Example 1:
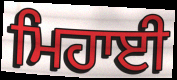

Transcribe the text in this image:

ਮਿਹਾਈ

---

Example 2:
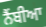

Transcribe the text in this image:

ਨੈਂਬੀਆ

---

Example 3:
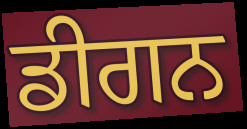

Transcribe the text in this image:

ਡੀਗਨ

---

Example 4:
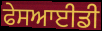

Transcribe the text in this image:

ਫੇਸਆਈਡੀ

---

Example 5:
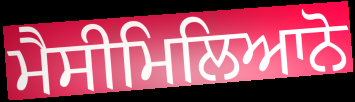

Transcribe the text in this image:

ਮੈਸੀਮਿਲਿਆਨੋ